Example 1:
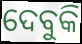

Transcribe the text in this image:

ଦେବୁକି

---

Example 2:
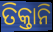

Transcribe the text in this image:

ତିକ୍ତାନି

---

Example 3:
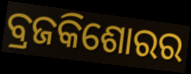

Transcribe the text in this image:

ବ୍ରଜକିଶୋରର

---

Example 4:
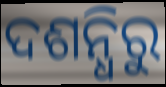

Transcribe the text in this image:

ଦଶନ୍ଧିରୁ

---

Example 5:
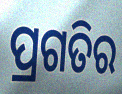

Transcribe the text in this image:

ପ୍ରଗତିର